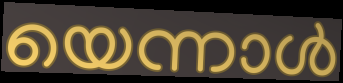
യെന്നാൾ